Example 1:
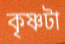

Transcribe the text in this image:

কৃষ্ণটা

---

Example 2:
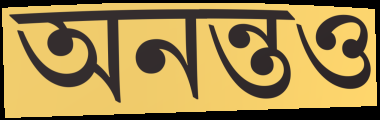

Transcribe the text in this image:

অনন্তও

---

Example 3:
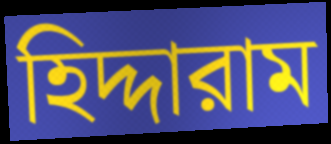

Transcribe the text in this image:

হিদ্দারাম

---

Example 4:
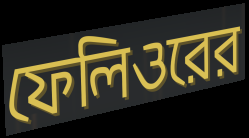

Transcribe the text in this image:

ফেলিওরের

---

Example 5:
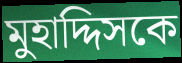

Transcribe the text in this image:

মুহাদ্দিসকে